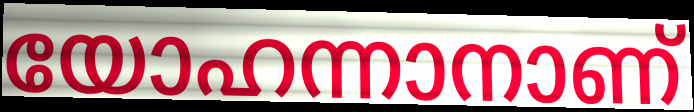
യോഹന്നാനാണ്